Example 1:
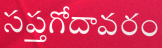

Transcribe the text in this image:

సప్తగోదావరం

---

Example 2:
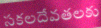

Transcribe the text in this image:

సకలదేవతలకు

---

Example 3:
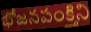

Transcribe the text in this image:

భోజనపంక్తిని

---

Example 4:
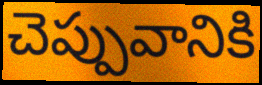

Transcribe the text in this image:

చెప్పువానికి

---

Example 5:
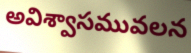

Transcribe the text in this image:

అవిశ్వాసమువలన